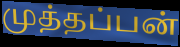
முத்தப்பன்